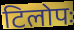
टिलोपः